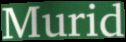
Murid